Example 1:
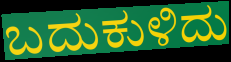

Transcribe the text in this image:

ಬದುಕುಳಿದು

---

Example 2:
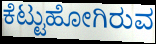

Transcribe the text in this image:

ಕೆಟ್ಟುಹೋಗಿರುವ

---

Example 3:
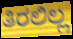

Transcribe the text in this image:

ತಿರಲಿಲ್ಲ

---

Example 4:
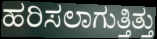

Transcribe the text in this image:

ಹರಿಸಲಾಗುತ್ತಿತ್ತು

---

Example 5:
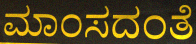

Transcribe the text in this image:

ಮಾಂಸದಂತೆ